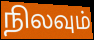
நிலவும்